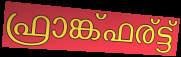
ഫ്രാങ്ക്ഫര്ട്ട്